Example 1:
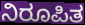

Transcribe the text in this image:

ನಿರೂಪಿತ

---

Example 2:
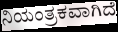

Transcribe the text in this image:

ನಿಯಂತ್ರಕವಾಗಿದೆ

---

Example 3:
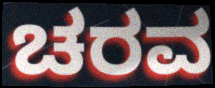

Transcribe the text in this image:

ಚರವ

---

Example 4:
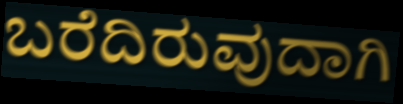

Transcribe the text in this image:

ಬರೆದಿರುವುದಾಗಿ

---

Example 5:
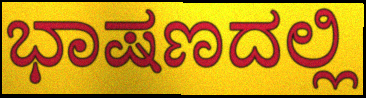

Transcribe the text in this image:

ಭಾಷಣದಲ್ಲಿ